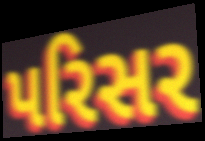
પરિસર